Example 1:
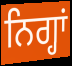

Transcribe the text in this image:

ਨਿਗ੍ਹਾਂ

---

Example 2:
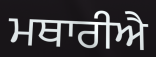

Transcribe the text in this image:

ਮਥਾਰੀਐ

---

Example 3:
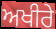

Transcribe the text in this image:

ਅਖੀਰੇ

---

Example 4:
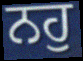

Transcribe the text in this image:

ਨਹੁ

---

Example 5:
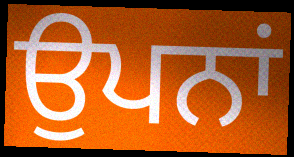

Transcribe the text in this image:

ਉਪਨਾਂ